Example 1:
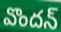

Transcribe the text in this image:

వొందన్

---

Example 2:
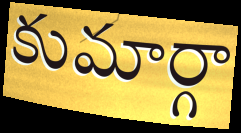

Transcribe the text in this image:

కుమార్గా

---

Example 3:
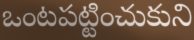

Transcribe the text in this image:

ఒంటపట్టించుకుని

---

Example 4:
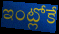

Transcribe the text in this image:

ఇంట్లోకే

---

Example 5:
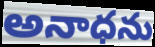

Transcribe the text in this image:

అనాధను